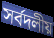
সৰ্বদলীয়